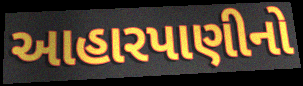
આહારપાણીનો